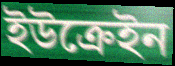
ইউক্রেইন